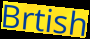
Brtish